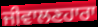
ਜੀਵਾਲਣਹਾਰਾ